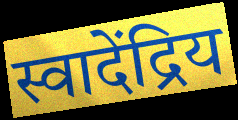
स्वादेंद्रिय